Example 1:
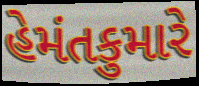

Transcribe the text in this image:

હેમંતકુમારે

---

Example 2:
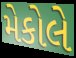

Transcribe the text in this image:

મેકોલે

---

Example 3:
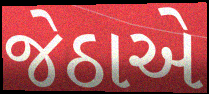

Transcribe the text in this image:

જેઠાએ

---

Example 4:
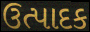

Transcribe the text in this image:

ઉત્પાદક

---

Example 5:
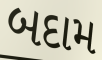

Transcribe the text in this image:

બદામ